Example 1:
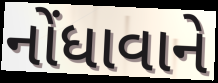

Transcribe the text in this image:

નોંધાવાને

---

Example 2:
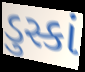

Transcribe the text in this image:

ડુસ્કાં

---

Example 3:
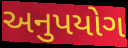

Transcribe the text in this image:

અનુપયોગ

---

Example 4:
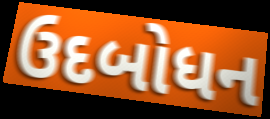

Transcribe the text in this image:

ઉદબોધન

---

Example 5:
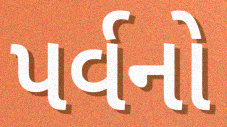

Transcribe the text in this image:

પર્વનો